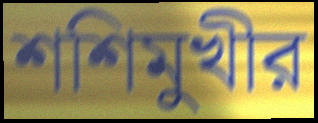
শশিমুখীর